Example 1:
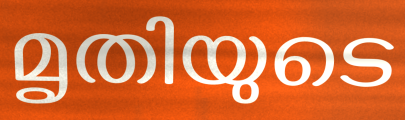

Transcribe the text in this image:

മൃതിയുടെ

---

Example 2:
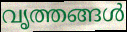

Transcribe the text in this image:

വൃത്തങ്ങൾ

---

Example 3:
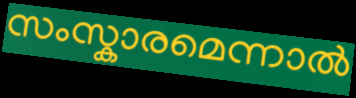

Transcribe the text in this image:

സംസ്കാരമെന്നാൽ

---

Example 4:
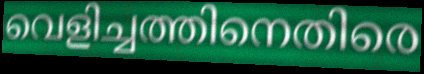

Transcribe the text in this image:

വെളിച്ചത്തിനെതിരെ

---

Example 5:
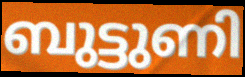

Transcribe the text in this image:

ബുട്ടുണി